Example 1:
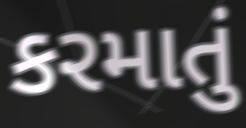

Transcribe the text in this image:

કરમાતું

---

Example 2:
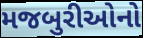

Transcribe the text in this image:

મજબુરીઓનો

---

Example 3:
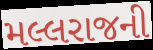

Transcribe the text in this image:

મલ્લરાજની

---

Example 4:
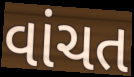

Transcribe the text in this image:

વાંચત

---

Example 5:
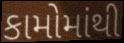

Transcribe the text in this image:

કામોમાંથી